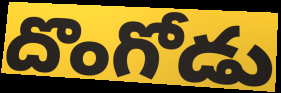
దొంగోడు